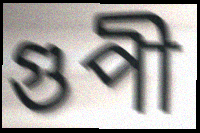
গুপী